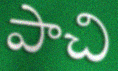
పాచి